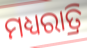
ମଧ୍ୟରାତ୍ରି